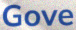
Gove